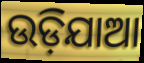
ଉଡ଼ିଯାଆ